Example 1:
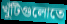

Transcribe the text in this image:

খুঁটিগুলোতে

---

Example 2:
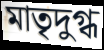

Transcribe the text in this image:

মাতৃদুগ্ধ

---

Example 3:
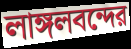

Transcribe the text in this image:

লাঙ্গলবন্দের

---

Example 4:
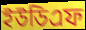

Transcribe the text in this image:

ইউডিএফ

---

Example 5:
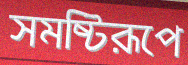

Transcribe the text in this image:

সমষ্টিরূপে